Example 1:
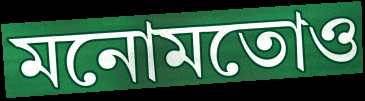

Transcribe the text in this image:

মনোমতোও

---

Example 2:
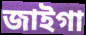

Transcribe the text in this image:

জাইগা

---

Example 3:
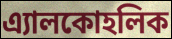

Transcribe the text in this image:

এ্যালকোহলিক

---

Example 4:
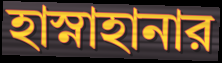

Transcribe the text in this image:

হাস্নাহানার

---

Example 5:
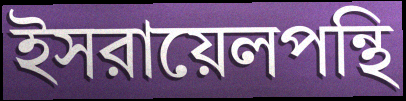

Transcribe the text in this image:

ইসরায়েলপন্থি